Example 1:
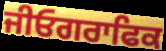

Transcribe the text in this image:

ਜੀਓਗਰਾਫਿਕ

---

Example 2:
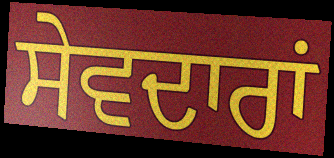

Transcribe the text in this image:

ਸੇਵਦਾਰਾਂ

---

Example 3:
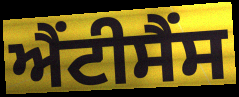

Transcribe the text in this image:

ਐਂਟੀਸੈਂਸ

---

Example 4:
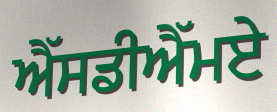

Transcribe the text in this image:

ਐੱਸਡੀਐੱਮਏ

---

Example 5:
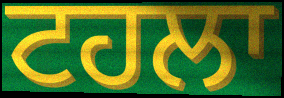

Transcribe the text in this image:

ਟਹਲਾ